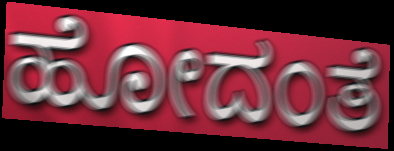
ಹೋದಂತೆ